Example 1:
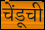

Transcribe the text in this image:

चेंडूची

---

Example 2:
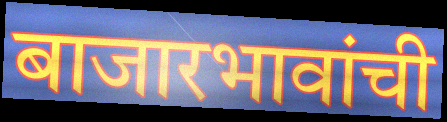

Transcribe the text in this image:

बाजारभावांची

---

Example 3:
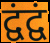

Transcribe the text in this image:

द्वंद्वं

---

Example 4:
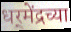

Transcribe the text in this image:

धर्मेंद्रच्या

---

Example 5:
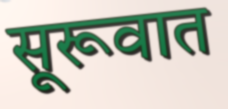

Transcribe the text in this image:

सूरूवात